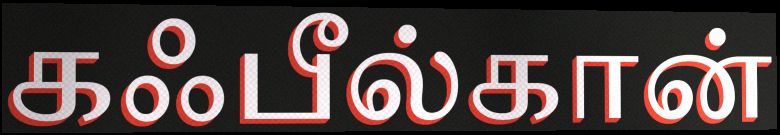
கஃபீல்கான்